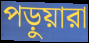
পড়ুয়ারা